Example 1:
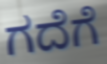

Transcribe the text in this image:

ಗದೆಗೆ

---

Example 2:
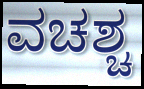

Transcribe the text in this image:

ವಚಶ್ಚ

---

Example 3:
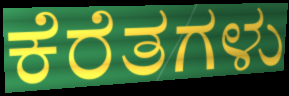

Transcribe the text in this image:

ಕೆರೆತಗಳು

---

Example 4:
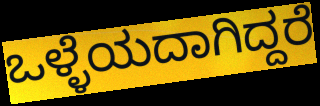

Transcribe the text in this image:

ಒಳ್ಳೆಯದಾಗಿದ್ದರೆ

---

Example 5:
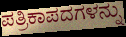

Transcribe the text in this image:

ಪತ್ರಿಕಾಪದಗಳನ್ನು